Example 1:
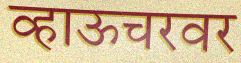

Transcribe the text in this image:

व्हाऊचरवर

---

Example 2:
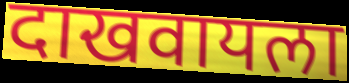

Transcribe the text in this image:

दाखवायला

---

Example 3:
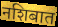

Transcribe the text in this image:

नशिबात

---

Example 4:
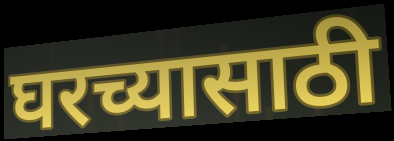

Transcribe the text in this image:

घरच्यासाठी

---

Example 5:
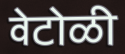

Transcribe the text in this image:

वेटोळी